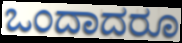
ಒಂದಾದರೂ